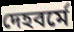
দেহবর্মে